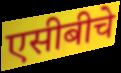
एसीबीचे